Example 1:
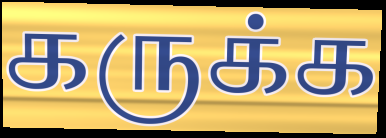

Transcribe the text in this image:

கருக்க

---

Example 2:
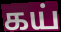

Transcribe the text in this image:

கய்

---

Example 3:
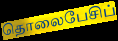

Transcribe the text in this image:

தொலைபேசிப்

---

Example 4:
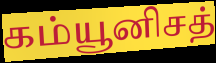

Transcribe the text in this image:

கம்யூனிசத்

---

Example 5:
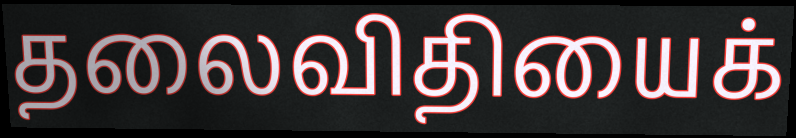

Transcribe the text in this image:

தலைவிதியைக்